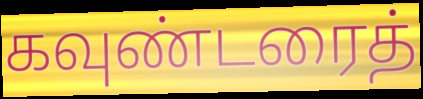
கவுண்டரைத்